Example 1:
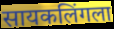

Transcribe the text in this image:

सायकलिंगला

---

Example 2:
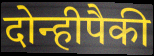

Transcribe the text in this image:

दोन्हीपैकी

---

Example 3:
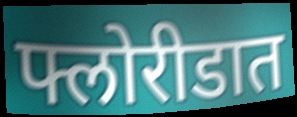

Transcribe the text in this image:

फ्लोरीडात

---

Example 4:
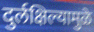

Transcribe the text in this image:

दुर्लक्षिल्यामुळे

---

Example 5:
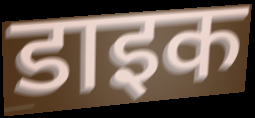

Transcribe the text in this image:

डाइक